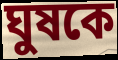
ঘুষকে